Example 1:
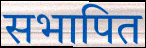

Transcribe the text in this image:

सभापित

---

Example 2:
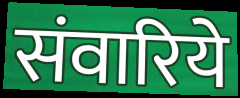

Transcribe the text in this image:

संवारिये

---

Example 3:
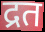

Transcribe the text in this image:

द्रत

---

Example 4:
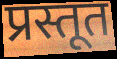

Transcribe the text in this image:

प्रस्तूत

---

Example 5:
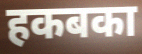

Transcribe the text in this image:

हकबका